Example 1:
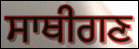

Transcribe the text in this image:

ਸਾਥੀਗਣ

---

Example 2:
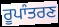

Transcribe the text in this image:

ਰੂਪਾੰਤਰਣ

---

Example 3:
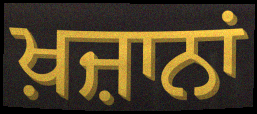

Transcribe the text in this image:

ਖ਼ਜ਼ਾਨਾਂ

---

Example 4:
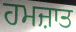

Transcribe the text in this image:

ਹਮਜ਼ਾਤ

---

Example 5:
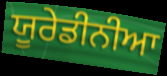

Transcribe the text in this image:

ਯੂਰੇਡੀਨੀਆ